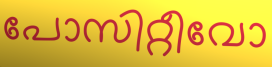
പോസിറ്റീവോ